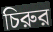
চিরুর